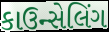
કાઉન્સેલિંગ